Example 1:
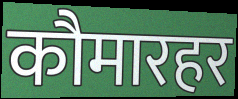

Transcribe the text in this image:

कौमारहर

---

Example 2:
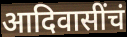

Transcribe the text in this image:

आदिवासींचं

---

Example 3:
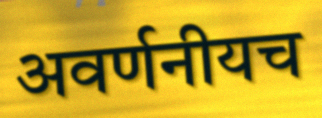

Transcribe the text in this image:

अवर्णनीयच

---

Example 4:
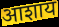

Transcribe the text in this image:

आशाय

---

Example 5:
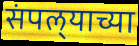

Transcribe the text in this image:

संपल्याच्या